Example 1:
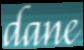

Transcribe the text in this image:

dane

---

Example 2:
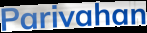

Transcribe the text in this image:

Parivahan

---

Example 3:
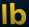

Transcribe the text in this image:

Ib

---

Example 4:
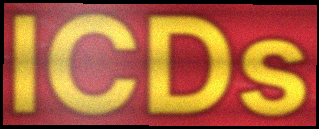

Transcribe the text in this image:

ICDs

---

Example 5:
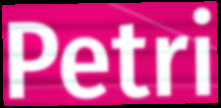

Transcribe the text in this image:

Petri